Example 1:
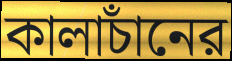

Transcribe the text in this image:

কালাচাঁনের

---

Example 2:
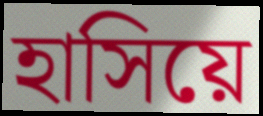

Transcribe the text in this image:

হাসিয়ে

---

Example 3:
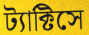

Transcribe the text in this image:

ট্যাক্টিসে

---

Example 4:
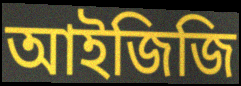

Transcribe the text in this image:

আইজিজি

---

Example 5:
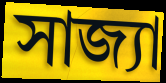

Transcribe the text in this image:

সাজ্যা